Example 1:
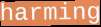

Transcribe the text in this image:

harming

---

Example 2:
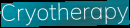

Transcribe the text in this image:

Cryotherapy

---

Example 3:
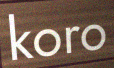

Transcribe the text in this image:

koro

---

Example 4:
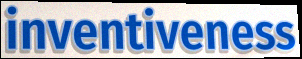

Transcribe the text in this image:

inventiveness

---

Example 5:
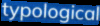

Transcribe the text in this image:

typological